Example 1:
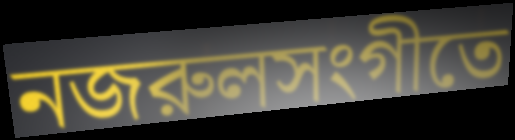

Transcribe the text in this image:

নজরুলসংগীতে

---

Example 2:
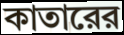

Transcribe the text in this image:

কাতারের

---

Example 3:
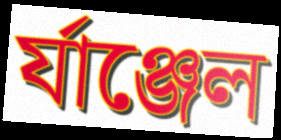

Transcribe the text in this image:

র্যাঞ্জেল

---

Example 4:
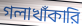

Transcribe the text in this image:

গলাখাঁকারি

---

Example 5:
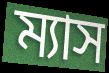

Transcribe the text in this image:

ম্যাস